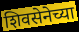
शिवसेनेच्या